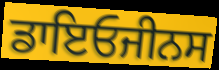
ਡਾਇਓਜੀਨਸ